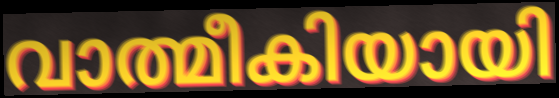
വാത്മീകിയായി